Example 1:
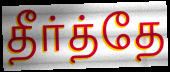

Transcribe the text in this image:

தீர்த்தே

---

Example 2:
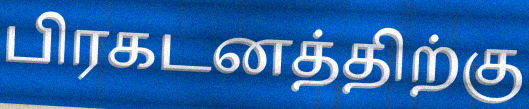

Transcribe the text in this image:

பிரகடனத்திற்கு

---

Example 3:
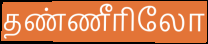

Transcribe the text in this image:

தண்ணீரிலோ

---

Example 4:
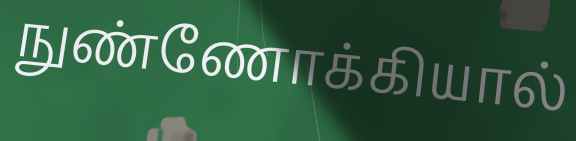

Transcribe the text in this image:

நுண்ணோக்கியால்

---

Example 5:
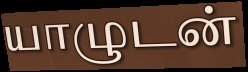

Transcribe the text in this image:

யாழுடன்